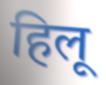
हिलू